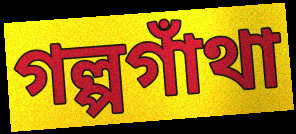
গল্পগাঁথা